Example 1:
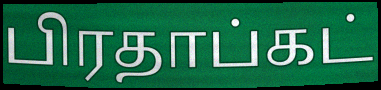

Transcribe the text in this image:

பிரதாப்கட்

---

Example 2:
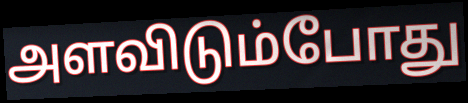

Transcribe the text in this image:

அளவிடும்போது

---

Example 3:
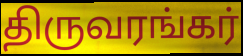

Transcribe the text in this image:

திருவரங்கர்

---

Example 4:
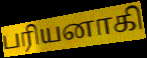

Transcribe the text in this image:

பரியனாகி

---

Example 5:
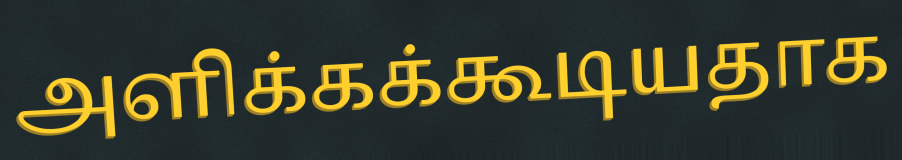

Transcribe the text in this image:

அளிக்கக்கூடியதாக